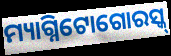
ମ୍ୟାଗ୍ନିଟୋଗୋରସ୍କ୍